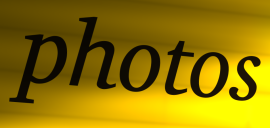
photos